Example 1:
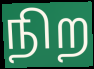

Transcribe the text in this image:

நிற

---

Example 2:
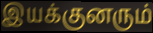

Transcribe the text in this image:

இயக்குனரும்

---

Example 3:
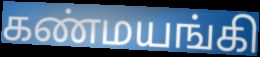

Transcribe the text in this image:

கண்மயங்கி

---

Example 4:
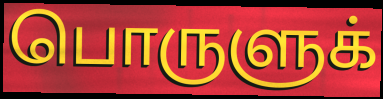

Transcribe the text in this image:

பொருளுக்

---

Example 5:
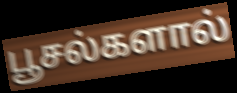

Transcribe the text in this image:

பூசல்களால்